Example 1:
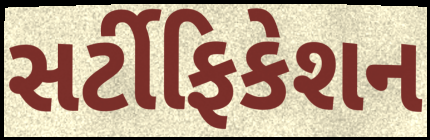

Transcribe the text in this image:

સર્ટીફિકેશન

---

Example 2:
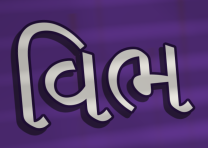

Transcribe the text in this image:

વિભ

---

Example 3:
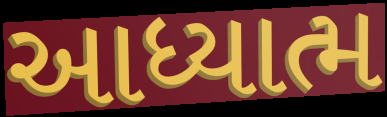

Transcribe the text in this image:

આધ્યાત્મ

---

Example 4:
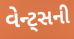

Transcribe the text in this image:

વેન્ટ્સની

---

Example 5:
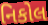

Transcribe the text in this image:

નિકોલ